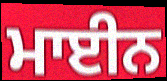
ਮਾਈਨ